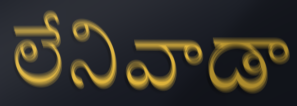
లేనివాడా